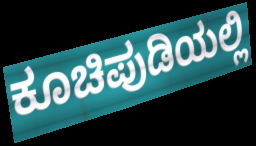
ಕೂಚಿಪುಡಿಯಲ್ಲಿ